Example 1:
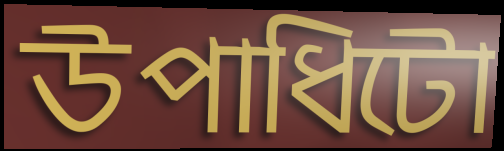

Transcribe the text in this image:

উপাধিটো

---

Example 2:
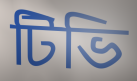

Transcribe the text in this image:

টিভি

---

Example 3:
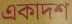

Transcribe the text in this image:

একাদশ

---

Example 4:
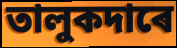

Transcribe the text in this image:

তালুকদাৰে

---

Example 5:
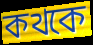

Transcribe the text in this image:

কথকে